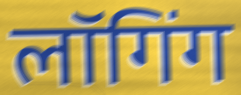
लॉगिंग